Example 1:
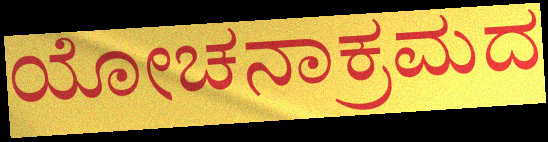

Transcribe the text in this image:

ಯೋಚನಾಕ್ರಮದ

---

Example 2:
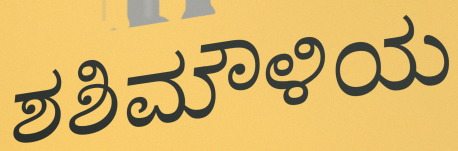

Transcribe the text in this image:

ಶಶಿಮೌಳಿಯ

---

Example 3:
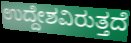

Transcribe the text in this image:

ಉದ್ದೇಶವಿರುತ್ತದೆ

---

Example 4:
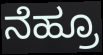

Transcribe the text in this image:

ನೆಹ್ರೂ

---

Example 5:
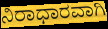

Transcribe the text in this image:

ನಿರಾಧಾರವಾಗಿ